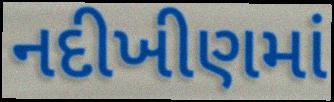
નદીખીણમાં